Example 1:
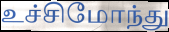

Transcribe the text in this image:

உச்சிமோந்து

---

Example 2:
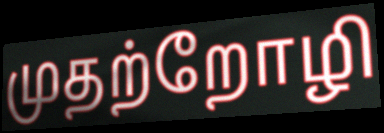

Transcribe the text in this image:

முதற்றோழி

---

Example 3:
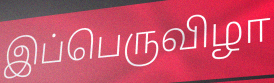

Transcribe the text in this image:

இப்பெருவிழா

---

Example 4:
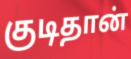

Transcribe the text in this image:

குடிதான்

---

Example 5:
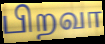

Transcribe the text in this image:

பிறவா